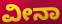
ವೀನಾ